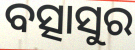
ବତ୍ସାସୁର